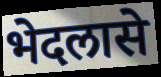
भेदलासे